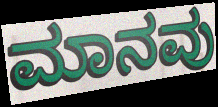
ಮಾನವು